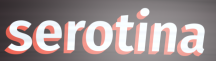
serotina